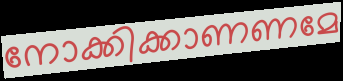
നോക്കിക്കാണണമേ